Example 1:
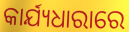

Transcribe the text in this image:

କାର୍ଯ୍ୟଧାରାରେ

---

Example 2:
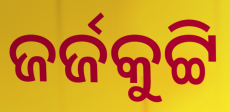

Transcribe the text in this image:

ଜର୍ଜକୁଟ୍ଟି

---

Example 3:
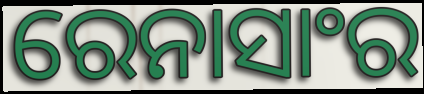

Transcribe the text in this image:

ରେନାସାଂର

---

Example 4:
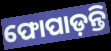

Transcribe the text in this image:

ଫୋପାଡ଼ନ୍ତି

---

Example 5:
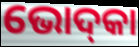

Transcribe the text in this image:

ଭୋଦ୍‌କା